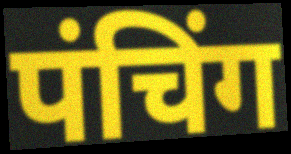
पंचिंग